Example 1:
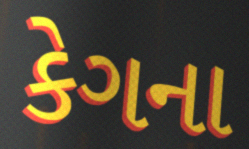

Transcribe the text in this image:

કેગના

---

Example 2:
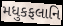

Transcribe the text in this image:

મધુકફલાનિ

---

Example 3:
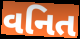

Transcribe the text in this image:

વનિત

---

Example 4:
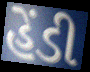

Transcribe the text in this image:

હેંડી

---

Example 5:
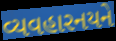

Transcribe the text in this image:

વ્યવહારનયને